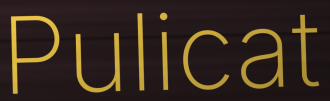
Pulicat